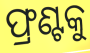
ଫ୍ରଣ୍ଟକୁ